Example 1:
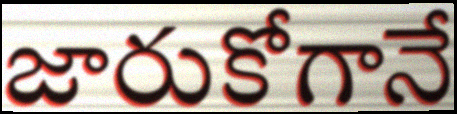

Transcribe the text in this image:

జారుకోగానే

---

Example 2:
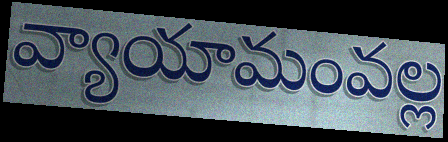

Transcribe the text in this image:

వ్యాయామంవల్ల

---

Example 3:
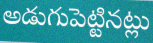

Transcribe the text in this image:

అడుగుపెట్టినట్లు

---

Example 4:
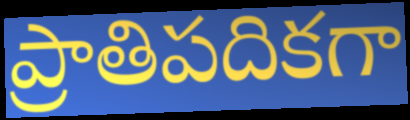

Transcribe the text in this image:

ప్రాతిపదికగా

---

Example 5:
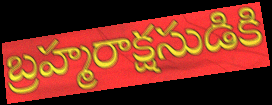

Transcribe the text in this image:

బ్రహ్మరాక్షసుడికి